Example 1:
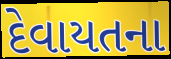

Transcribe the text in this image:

દેવાયતના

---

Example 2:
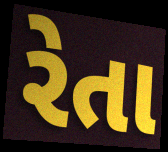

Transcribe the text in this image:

રેતા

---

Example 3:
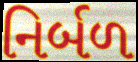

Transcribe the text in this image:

નિર્બળ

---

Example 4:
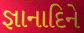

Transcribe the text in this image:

જ્ઞાનાદિને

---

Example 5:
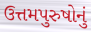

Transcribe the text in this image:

ઉત્તમપુરુષોનું